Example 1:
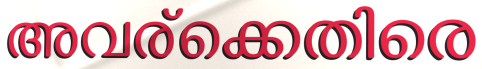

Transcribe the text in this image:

അവര്ക്കെതിരെ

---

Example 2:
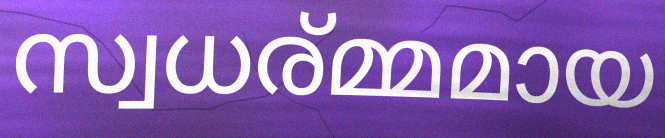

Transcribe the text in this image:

സ്വധര്മ്മമായ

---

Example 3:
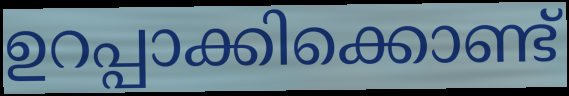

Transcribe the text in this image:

ഉറപ്പാക്കിക്കൊണ്ട്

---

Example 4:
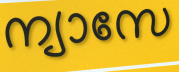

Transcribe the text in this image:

ന്യാസേ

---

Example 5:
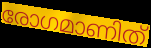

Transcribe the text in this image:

രോഗമാണിത്